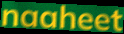
naaheet